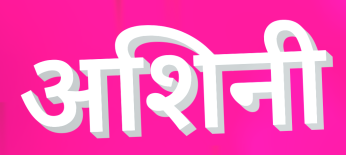
अशिनी